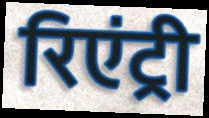
रिएंट्री